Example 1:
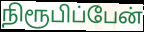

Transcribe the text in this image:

நிரூபிப்பேன்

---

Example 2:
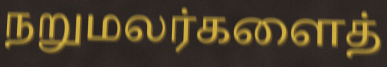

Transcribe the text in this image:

நறுமலர்களைத்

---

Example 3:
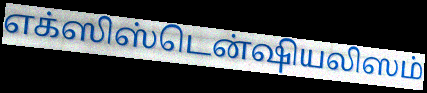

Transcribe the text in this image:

எக்ஸிஸ்டென்ஷியலிஸம்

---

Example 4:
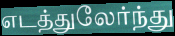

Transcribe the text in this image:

எடத்துலேர்ந்து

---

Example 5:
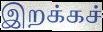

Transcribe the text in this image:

இறக்கச்